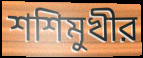
শশিমুখীর